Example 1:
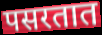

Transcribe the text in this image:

पसरतात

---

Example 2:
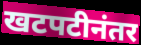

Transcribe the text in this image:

खटपटीनंतर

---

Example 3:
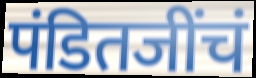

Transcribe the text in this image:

पंडितजींचं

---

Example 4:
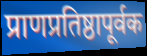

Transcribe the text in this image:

प्राणप्रतिष्ठापूर्वक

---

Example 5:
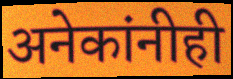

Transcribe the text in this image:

अनेकांनीही